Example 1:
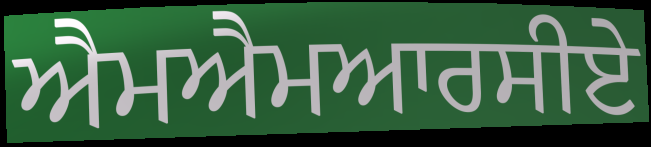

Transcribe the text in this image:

ਐਮਐਮਆਰਸੀਏ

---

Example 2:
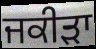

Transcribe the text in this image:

ਜਕੀੜਾ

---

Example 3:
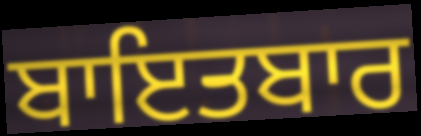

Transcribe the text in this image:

ਬਾਇਤਬਾਰ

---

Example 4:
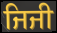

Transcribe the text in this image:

ਜਿਜੀ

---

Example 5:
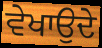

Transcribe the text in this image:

ਵੇਖਾਉਦੇ